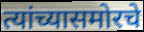
त्यांच्यासमोरचे